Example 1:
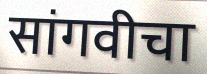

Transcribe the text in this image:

सांगवीचा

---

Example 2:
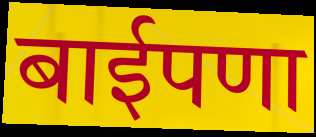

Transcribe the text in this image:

बाईपणा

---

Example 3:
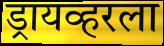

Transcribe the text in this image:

ड्रायव्हरला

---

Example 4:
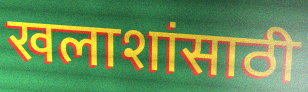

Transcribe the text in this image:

खलाशांसाठी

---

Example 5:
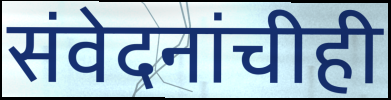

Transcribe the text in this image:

संवेदनांचीही